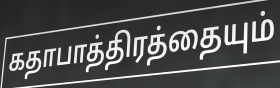
கதாபாத்திரத்தையும்